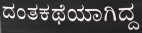
ದಂತಕಥೆಯಾಗಿದ್ದ